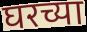
घरच्या